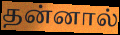
தன்னால்